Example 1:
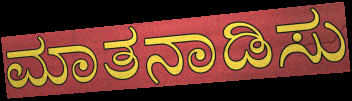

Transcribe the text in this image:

ಮಾತನಾಡಿಸು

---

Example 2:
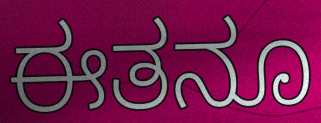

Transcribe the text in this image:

ಈತನೂ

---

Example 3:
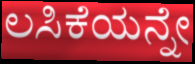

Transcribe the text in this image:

ಲಸಿಕೆಯನ್ನೇ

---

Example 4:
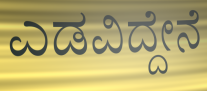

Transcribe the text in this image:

ಎಡವಿದ್ದೇನೆ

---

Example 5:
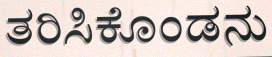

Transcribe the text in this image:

ತರಿಸಿಕೊಂಡನು